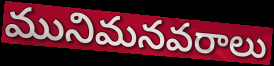
మునిమనవరాలు